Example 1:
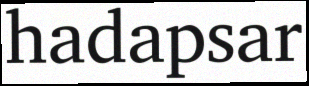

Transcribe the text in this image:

hadapsar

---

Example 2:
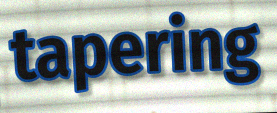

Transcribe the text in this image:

tapering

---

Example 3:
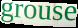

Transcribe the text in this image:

grouse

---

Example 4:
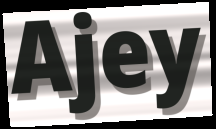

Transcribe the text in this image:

Ajey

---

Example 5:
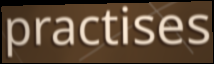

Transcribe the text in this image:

practises